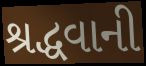
શ્રદ્ધવાની